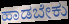
ಹಾಡಬೇಕು